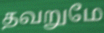
தவறுமே